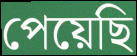
পেয়েছি